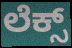
ಲೆಕ್ಸ್